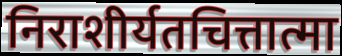
निराशीर्यतचित्तात्मा